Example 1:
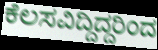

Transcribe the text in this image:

ಕೆಲಸವಿದ್ದಿದ್ದರಿಂದ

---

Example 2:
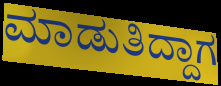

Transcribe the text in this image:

ಮಾಡುತಿದ್ದಾಗ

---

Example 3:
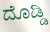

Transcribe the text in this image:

ದೊಡ್ಡಿ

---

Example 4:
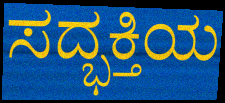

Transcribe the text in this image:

ಸದ್ಭಕ್ತಿಯ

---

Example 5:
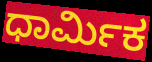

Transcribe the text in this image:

ಧಾರ್ಮಿಕ